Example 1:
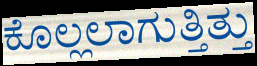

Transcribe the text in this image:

ಕೊಲ್ಲಲಾಗುತ್ತಿತ್ತು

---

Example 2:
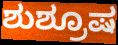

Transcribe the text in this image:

ಶುಶ್ರೂಷ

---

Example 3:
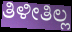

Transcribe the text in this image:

ತಿಳೀತಿಲ್ಲ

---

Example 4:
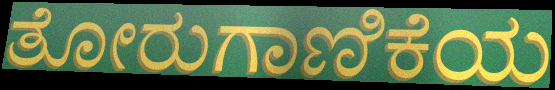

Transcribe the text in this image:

ತೋರುಗಾಣಿಕೆಯ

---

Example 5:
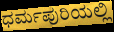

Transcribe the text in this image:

ಧರ್ಮಪುರಿಯಲ್ಲಿ